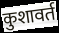
कुशावर्त